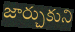
జార్చుకుని